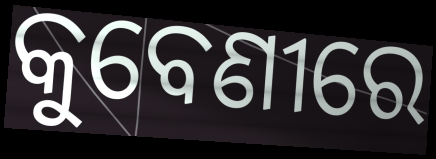
କୁବେଣୀରେ